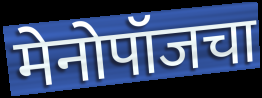
मेनोपॉजचा